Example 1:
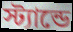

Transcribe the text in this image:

স্ট্যান্ডে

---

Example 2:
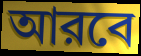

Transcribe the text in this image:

আরবে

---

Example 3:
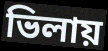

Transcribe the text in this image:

ভিলায়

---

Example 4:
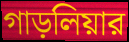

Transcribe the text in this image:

গাড়লিয়ার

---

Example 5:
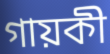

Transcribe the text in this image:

গায়কী